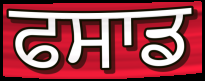
ਫਸਾਡ